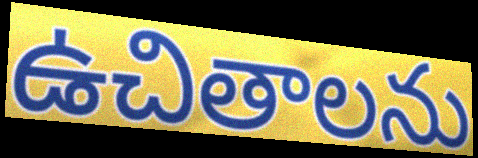
ఉచితాలను